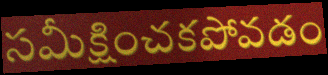
సమీక్షించకపోవడం